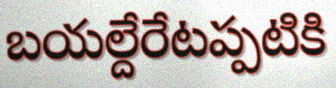
బయల్దేరేటప్పటికి